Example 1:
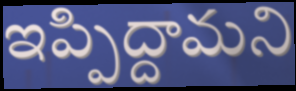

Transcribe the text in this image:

ఇప్పిద్దామని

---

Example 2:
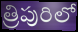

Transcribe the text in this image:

త్రిపురిలో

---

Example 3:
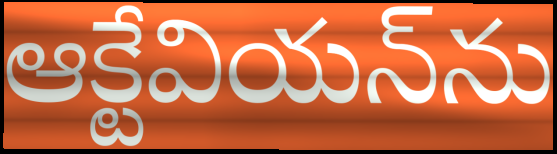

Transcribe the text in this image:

ఆక్టేవియన్‌ను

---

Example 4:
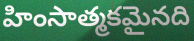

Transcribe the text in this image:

హింసాత్మకమైనది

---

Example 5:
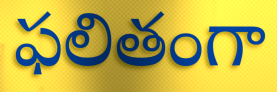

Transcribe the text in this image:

ఫలితంగా